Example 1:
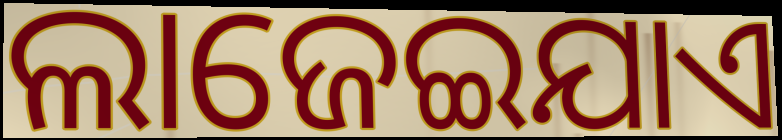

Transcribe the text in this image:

ଲାଜେଇଯାଏ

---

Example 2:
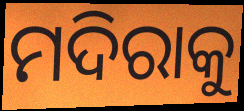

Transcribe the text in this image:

ମଦିରାକୁ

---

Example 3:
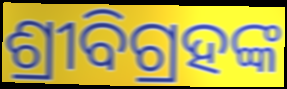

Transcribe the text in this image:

ଶ୍ରୀବିଗ୍ରହଙ୍କ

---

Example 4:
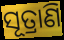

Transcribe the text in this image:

ସୂତ୍ରାଣି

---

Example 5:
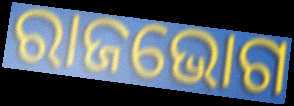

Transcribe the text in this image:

ରାଜଭୋଗ